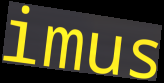
imus